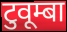
टुवूम्बा